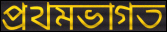
প্ৰথমভাগত